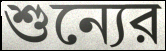
শুন্যের